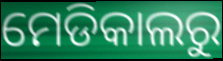
ମେଡିକାଲରୁ